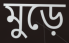
মুড়ে